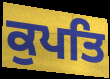
ਕੁਪਤਿ